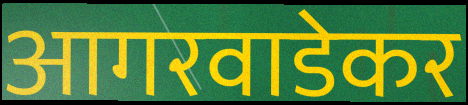
आगरवाडेकर